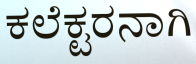
ಕಲೆಕ್ಟರನಾಗಿ